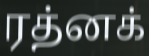
ரத்னக்